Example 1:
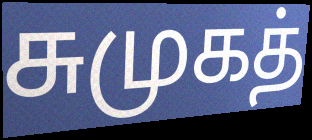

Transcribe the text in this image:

சுமுகத்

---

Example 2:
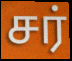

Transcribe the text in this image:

சர்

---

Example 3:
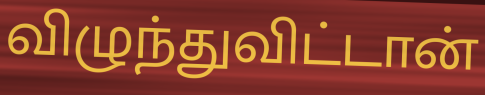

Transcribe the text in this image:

விழுந்துவிட்டான்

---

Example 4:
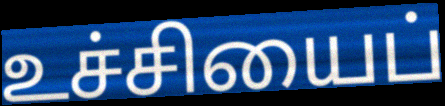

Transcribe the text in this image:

உச்சியைப்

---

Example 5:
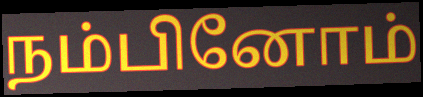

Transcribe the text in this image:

நம்பினோம்